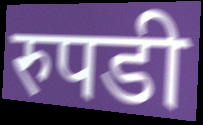
रुपडी